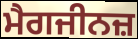
ਮੈਗਜੀਨਜ਼